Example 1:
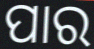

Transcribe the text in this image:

ପାର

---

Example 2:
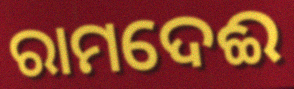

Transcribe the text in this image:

ରାମଦେଈ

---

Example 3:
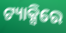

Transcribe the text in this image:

ଟ୍ୟାକ୍ସିରେ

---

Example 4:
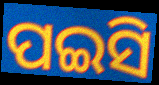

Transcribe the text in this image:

ପଇସି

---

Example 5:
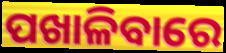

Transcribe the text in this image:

ପଖାଳିବାରେ